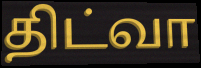
திட்வா